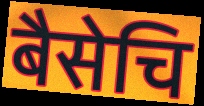
बैसेचि